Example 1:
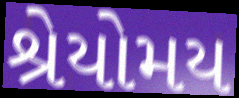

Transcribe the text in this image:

શ્રેયોમય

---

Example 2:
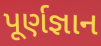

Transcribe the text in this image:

પૂર્ણજ્ઞાન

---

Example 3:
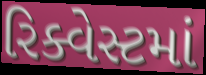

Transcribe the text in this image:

રિક્વેસ્ટમાં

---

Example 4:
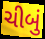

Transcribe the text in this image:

ચીબું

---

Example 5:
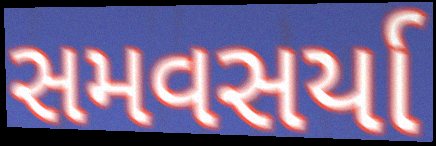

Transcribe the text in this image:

સમવસર્યા